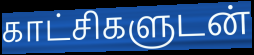
காட்சிகளுடன்